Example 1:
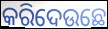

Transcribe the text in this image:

କରିଦେଉଛେ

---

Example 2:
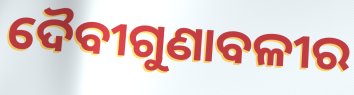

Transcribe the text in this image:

ଦୈବୀଗୁଣାବଳୀର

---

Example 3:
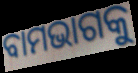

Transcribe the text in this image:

ବାମଭାଗକୁ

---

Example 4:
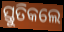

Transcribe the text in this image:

ସ୍ତୁତିକଲେ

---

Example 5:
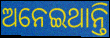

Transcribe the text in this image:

ଅନେଇଥାନ୍ତି